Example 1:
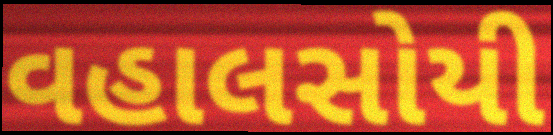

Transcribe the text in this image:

વહાલસોયી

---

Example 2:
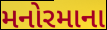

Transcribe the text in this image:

મનોરમાના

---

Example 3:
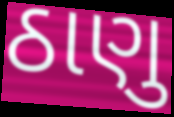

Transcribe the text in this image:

ઠાણુ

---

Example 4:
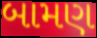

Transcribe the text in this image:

બામણ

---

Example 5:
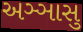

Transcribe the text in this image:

અઞ્ઞાસુ